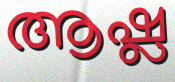
ആഷ്ല